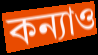
কন্যাও